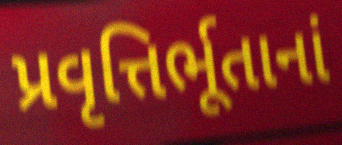
પ્રવૃત્તિર્ભૂતાનાં